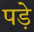
पड़े